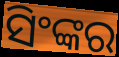
ସିଂଙ୍କର